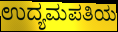
ಉದ್ಯಮಪತಿಯ